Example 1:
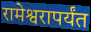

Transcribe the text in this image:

रामेश्वरापर्यंत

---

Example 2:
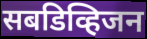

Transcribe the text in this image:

सबडिव्हिजन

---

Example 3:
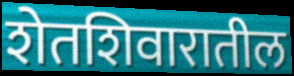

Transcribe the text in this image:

शेतशिवारातील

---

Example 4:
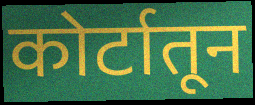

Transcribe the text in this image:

कोर्टातून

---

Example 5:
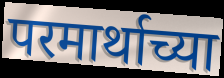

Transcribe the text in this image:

परमार्थाच्या